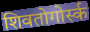
शिवतोगोर्स्क